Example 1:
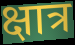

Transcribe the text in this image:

क्षात्र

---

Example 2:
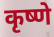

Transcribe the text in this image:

कृष्णे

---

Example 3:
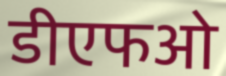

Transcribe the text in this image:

डीएफओ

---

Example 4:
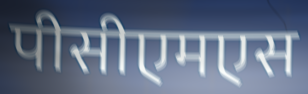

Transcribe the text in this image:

पीसीएमएस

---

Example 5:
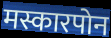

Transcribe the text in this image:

मस्कारपोन